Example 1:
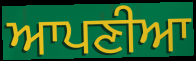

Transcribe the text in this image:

ਆਪਣੀਆ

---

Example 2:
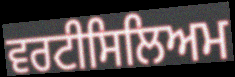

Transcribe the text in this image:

ਵਰਟੀਸਿਲਿਅਮ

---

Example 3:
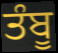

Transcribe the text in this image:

ਤੰਬੂ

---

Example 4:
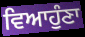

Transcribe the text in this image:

ਵਿਆਹੁੰਣਾ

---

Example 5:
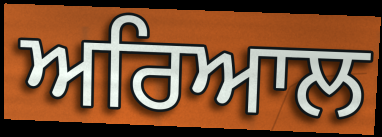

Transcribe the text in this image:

ਅਰਿਆਲ